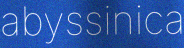
abyssinica